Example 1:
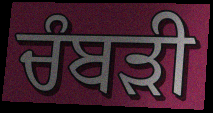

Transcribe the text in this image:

ਚੰਬੜੀ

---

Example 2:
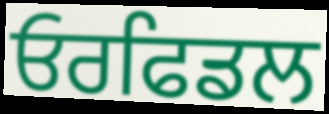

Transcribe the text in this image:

ਓਰਫਿਡਲ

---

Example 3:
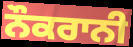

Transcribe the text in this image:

ਨੌਕਰਾਨੀ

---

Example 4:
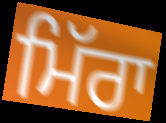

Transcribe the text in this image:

ਮਿੱਰਾ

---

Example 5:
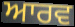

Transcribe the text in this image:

ਆਰਵ